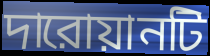
দারোয়ানটি